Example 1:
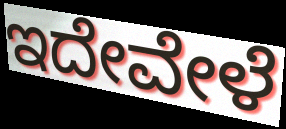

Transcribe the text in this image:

ಇದೇವೇಳೆ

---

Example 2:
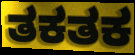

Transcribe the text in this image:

ತಕತಕ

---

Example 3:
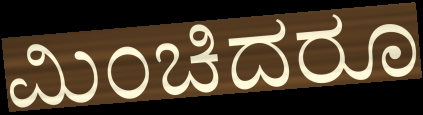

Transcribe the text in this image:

ಮಿಂಚಿದರೂ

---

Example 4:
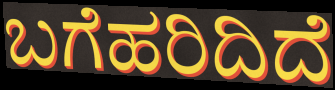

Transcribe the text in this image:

ಬಗೆಹರಿದಿದೆ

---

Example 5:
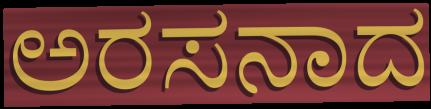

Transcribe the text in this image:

ಅರಸನಾದ